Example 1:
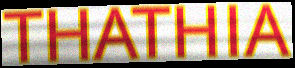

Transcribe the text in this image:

THATHIA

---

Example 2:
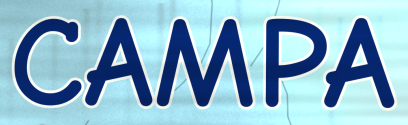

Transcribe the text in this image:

CAMPA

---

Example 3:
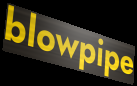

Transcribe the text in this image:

blowpipe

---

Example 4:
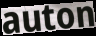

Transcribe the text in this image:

auton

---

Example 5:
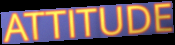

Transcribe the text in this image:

ATTITUDE